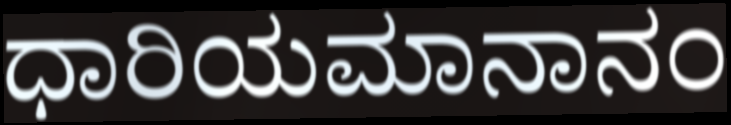
ಧಾರಿಯಮಾನಾನಂ